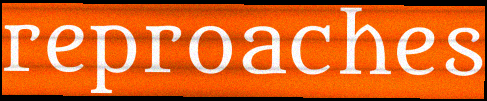
reproaches